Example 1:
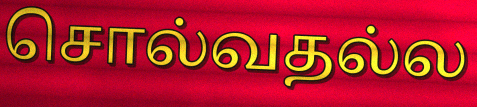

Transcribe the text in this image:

சொல்வதல்ல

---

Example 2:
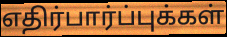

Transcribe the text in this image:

எதிர்பார்ப்புக்கள்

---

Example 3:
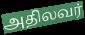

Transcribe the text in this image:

அதிலவர்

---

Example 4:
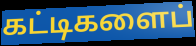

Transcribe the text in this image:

கட்டிகளைப்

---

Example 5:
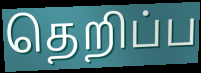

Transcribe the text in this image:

தெறிப்ப